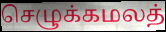
செழுக்கமலத்